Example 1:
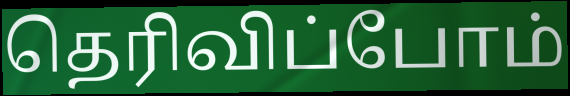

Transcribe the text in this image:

தெரிவிப்போம்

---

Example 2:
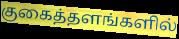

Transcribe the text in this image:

குகைத்தளங்களில்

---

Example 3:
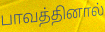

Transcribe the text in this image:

பாவத்தினால்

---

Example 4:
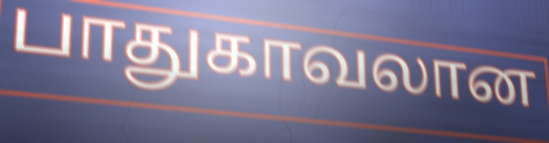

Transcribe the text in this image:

பாதுகாவலான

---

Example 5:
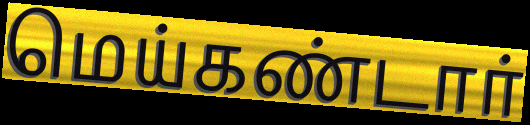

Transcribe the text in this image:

மெய்கண்டார்